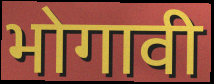
भोगावी